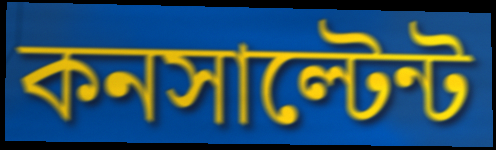
কনসাল্টেন্ট